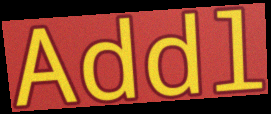
Addl